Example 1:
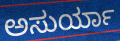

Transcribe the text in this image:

ಅಸುರ್ಯಾ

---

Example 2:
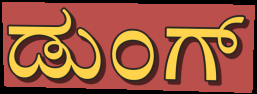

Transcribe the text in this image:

ಡುಂಗ್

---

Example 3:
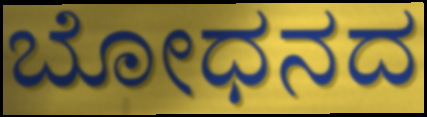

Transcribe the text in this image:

ಬೋಧನದ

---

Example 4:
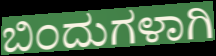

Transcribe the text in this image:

ಬಿಂದುಗಳಾಗಿ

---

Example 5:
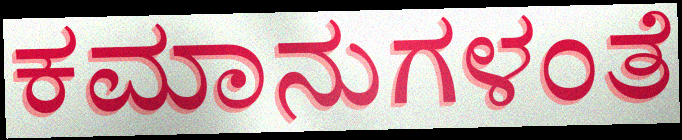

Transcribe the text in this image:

ಕಮಾನುಗಳಂತೆ